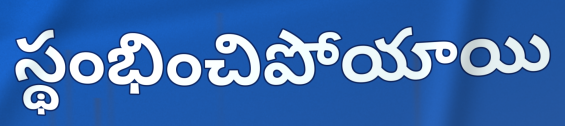
స్థంభించిపోయాయి